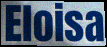
Eloisa